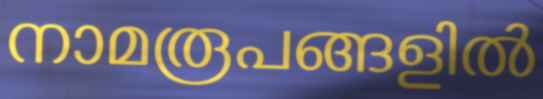
നാമരൂപങ്ങളിൽ